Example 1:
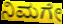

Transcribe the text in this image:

ನಿಮಗೇ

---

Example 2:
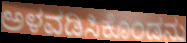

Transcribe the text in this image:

ಅಳವಡಿಸಿಕೊಂಡನು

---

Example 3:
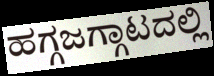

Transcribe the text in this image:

ಹಗ್ಗಜಗ್ಗಾಟದಲ್ಲಿ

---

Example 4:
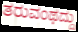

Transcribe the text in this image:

ತರುವಂಥದ್ದು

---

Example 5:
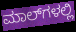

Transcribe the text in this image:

ಮಾಲ್‌ಗಳಲ್ಲಿ